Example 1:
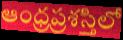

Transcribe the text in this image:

ఆంధ్రప్రశస్తిలో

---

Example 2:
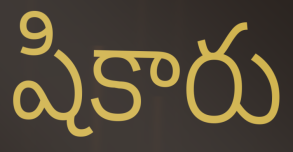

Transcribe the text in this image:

షికారు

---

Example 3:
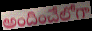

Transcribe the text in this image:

అందించేలోగా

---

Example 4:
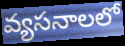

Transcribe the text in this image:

వ్యసనాలలో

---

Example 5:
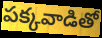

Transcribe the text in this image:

పక్కవాడితో